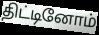
திட்டினோம்